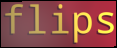
flips